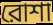
রোশা